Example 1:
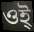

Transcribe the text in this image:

ওই্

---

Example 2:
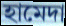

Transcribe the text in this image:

হামেদা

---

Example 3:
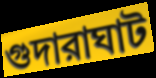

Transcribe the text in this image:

গুদারাঘাট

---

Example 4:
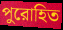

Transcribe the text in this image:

পুরোহিত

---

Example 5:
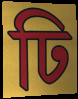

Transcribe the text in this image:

ঢি